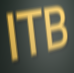
ITB